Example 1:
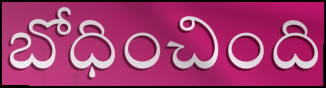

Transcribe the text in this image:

బోధించింది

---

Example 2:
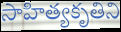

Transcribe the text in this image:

సాహిత్యకృతిని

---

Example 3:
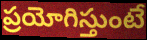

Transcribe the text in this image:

ప్రయోగిస్తుంటే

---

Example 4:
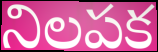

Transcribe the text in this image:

నిలపక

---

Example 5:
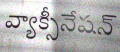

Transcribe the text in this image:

వ్యాక్సీనేషన్